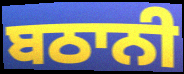
ਬਠਾਨੀ